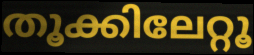
തൂക്കിലേറ്റൂ